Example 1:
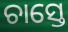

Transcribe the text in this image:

ଚାସ୍ତେ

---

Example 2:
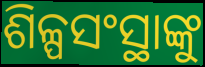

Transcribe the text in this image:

ଶିଳ୍ପସଂସ୍ଥାଙ୍କୁ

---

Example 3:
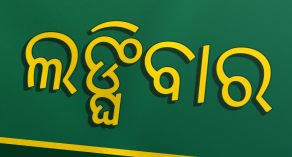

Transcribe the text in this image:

ଲଙ୍ଘିବାର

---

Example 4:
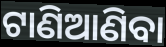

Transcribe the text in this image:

ଟାଣିଆଣିବା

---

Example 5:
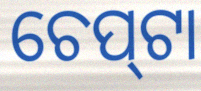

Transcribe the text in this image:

ଚେପ୍‌ଟା